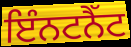
ਇੰਨਟਨੈੱਟ